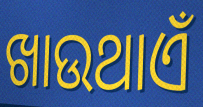
ଖାଉଥାଏଁ